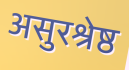
असुरश्रेष्ठ